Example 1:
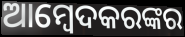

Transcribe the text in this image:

ଆମ୍ବେଦକରଙ୍କର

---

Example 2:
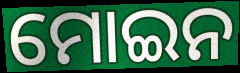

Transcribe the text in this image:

ମୋଇନ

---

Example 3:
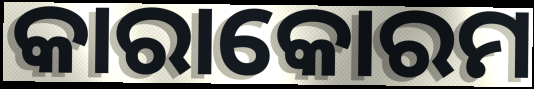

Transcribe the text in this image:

କାରାକୋରମ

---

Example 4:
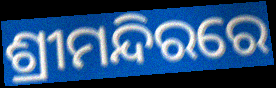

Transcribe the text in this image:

ଶ୍ରୀମନ୍ଦିରରେ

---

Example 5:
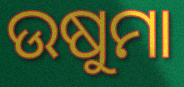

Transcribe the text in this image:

ଉଷୁମା